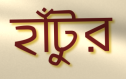
হাঁটুর